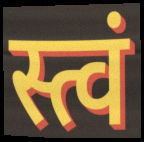
स्त्वं